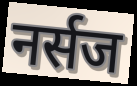
नर्सज